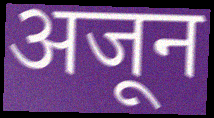
अजून